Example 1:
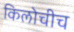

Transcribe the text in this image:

किलोचीच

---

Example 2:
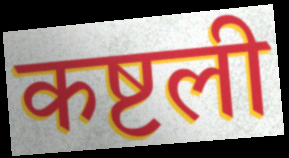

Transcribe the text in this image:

कष्टली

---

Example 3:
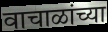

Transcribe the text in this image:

वाचाळांच्या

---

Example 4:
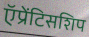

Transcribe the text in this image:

ऍप्रेंटिसशिप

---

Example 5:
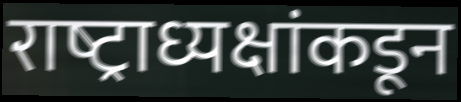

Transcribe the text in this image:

राष्ट्राध्यक्षांकडून